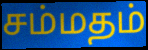
சம்மதம்